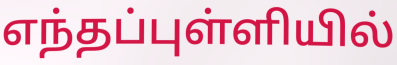
எந்தப்புள்ளியில்